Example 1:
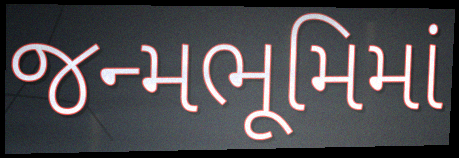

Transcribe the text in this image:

જન્મભૂમિમાં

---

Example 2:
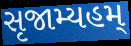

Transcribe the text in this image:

સૃજામ્યહમ્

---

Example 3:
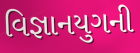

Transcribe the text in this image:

વિજ્ઞાનયુગની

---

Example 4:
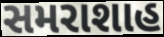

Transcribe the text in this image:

સમરાશાહ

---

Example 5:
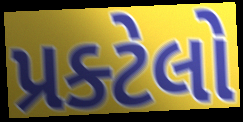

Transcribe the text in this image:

પ્રક્ટેલો